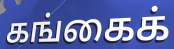
கங்கைக்